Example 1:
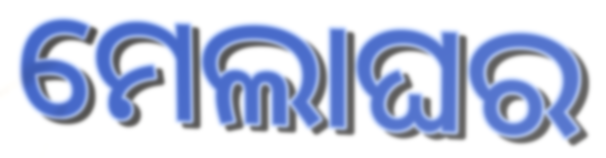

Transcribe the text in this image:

ମେଲାଘର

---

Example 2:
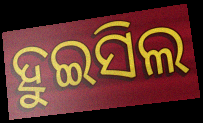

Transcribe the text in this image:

ହୁଇସିଲ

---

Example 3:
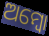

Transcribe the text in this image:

ଅମ୍ୱୋ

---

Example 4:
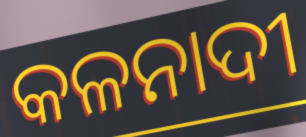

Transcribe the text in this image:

କଳନାଦୀ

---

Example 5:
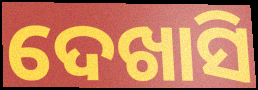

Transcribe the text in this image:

ଦେଖାସି